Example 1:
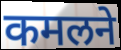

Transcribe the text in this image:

कमलने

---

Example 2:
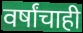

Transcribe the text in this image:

वर्षांचाही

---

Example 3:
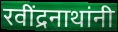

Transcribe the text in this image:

रवींद्रनाथांनी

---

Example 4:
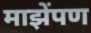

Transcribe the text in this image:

माझेंपण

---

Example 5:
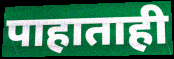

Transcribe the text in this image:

पाहाताही